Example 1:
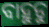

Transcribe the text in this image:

ବାହୁଡୁ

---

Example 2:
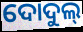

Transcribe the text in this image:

ଦୋଦୁଲ୍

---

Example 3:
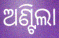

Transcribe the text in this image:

ଅଣ୍ଟିଲା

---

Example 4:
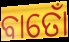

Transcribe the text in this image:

ବାତୋଁ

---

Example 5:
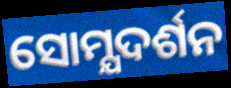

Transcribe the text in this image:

ସୋମ୍ଯଦର୍ଶନ